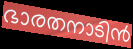
ഭാരതനാടിൻ